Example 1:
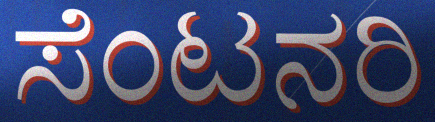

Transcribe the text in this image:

ಸೆಂಟನರಿ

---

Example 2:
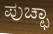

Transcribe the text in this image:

ಪುಚ್ಛಾ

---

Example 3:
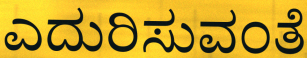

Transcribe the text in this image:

ಎದುರಿಸುವಂತೆ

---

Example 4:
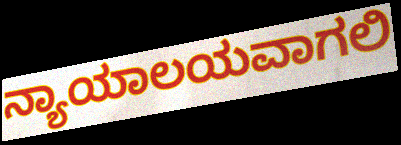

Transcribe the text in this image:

ನ್ಯಾಯಾಲಯವಾಗಲಿ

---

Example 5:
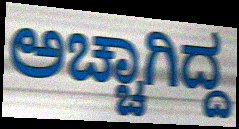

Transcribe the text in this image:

ಅಚ್ಚಾಗಿದ್ದ